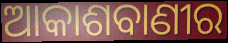
ଆକାଶବାଣୀର